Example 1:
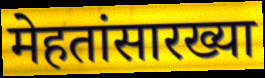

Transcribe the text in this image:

मेहतांसारख्या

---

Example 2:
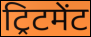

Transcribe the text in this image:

ट्रिटमेंट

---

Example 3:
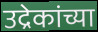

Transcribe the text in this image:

उद्रेकांच्या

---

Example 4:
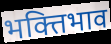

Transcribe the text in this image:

भक्तिभाव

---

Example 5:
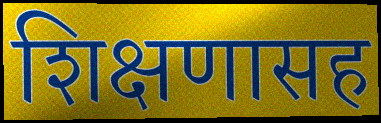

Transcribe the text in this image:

शिक्षणासह